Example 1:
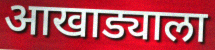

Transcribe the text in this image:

आखाड्याला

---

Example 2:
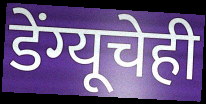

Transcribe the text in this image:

डेंग्यूचेही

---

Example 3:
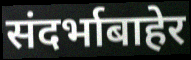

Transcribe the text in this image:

संदर्भाबाहेर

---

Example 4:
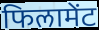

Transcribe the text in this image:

फिलामेंट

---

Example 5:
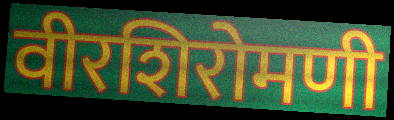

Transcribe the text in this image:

वीरशिरोमणी